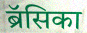
ब्रॅसिका